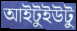
আইটুইউটু